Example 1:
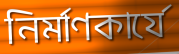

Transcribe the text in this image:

নির্মাণকার্যে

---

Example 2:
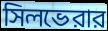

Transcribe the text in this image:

সিলভেরার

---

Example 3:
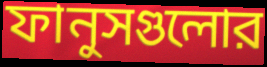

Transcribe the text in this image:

ফানুসগুলোর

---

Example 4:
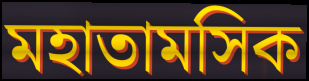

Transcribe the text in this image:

মহাতামসিক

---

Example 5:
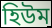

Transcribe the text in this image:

হিউম